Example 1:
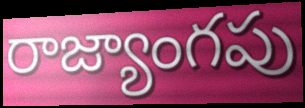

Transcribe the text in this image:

రాజ్యాంగపు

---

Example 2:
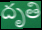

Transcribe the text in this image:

దృతి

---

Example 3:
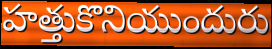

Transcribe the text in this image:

హత్తుకొనియుందురు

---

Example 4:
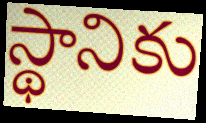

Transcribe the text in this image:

స్థానికు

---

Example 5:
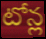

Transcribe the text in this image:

టోన్ల